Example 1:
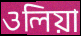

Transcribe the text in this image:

ওলিয়া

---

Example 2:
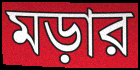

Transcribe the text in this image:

মড়ার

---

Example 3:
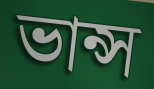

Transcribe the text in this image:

ভান্স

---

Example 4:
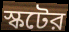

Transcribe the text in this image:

স্কটের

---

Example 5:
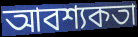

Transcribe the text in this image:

আবশ্যকতা